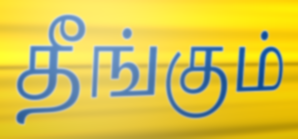
தீங்கும்